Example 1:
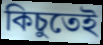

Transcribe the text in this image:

কিচুতেই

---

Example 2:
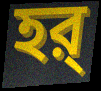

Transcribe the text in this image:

হর্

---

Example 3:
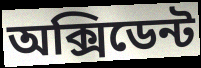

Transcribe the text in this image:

অক্সিডেন্ট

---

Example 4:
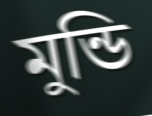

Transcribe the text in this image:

মুন্ডি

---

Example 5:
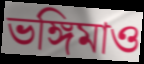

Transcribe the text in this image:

ভঙ্গিমাও